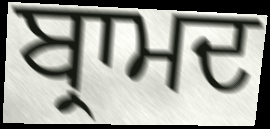
ਬ੍ਰਾਮਦ